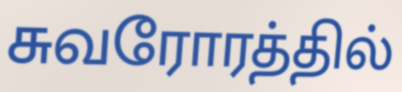
சுவரோரத்தில்